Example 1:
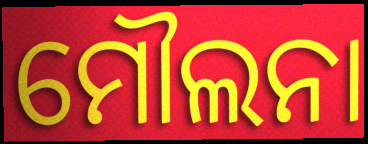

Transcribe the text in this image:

ମୌଲନା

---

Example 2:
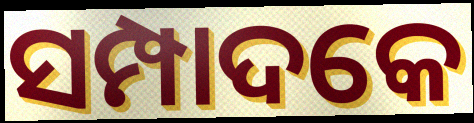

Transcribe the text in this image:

ସମ୍ପାଦକେ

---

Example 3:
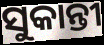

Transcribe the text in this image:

ସୁକାନ୍ତୀ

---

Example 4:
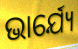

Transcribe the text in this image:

ଭାର୍ଯ୍ଯେ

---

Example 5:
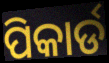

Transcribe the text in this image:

ପିକାର୍ଡ